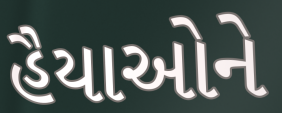
હૈયાઓને